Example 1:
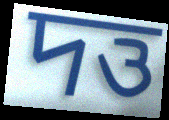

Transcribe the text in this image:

দত্ত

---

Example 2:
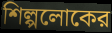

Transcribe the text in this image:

শিল্পলোকের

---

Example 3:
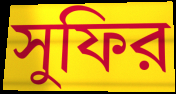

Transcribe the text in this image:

সুফির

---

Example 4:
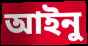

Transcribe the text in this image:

আইনু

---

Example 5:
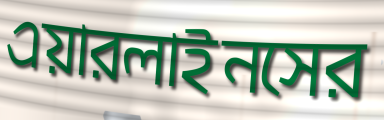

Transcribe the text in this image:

এয়ারলাইনসের